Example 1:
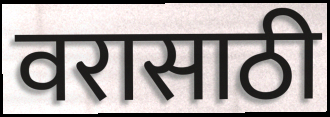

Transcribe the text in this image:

वरासाठी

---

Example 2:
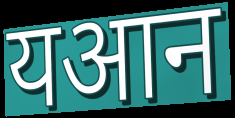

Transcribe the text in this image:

यआन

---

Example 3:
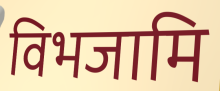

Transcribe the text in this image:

विभजामि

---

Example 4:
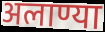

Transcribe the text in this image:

अलाण्या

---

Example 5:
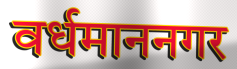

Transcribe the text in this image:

वर्धमाननगर